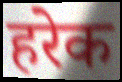
हरेक